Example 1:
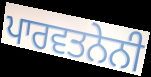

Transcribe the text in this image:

ਪਾਰਵਤਨੇਨੀ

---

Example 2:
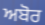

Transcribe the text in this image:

ਅਬੋਰ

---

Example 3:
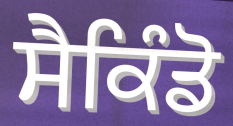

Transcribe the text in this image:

ਸੈਕਿੰਡੋ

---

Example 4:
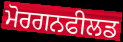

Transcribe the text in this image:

ਮੋਰਗਨਫੀਲਡ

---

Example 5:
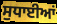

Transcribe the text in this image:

ਸੁਧਾਈਆਂ